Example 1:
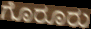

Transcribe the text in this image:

ಗೊರೂರು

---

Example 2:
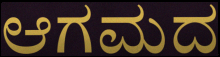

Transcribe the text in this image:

ಆಗಮದ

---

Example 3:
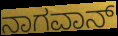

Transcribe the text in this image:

ನಾಗವಾನ್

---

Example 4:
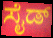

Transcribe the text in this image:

ಸೈಡ್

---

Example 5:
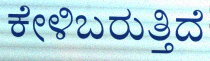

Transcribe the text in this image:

ಕೇಳಿಬರುತ್ತಿದೆ